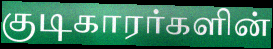
குடிகாரர்களின்